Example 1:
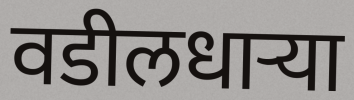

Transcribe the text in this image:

वडीलधाऱ्या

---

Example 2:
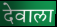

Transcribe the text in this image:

देवाला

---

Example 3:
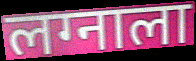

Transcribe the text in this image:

लग्नाला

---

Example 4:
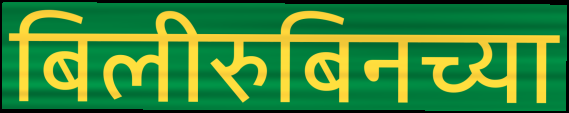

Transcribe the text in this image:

बिलीरुबिनच्या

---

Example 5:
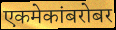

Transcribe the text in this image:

एकमेकांबरोबर